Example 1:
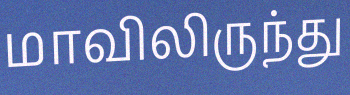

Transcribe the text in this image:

மாவிலிருந்து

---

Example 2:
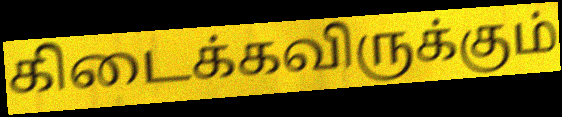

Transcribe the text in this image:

கிடைக்கவிருக்கும்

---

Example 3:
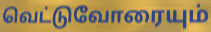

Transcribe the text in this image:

வெட்டுவோரையும்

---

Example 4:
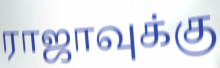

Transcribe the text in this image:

ராஜாவுக்கு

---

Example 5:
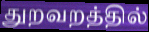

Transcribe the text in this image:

துறவறத்தில்